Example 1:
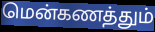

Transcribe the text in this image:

மென்கணத்தும்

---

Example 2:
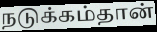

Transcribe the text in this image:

நடுக்கம்தான்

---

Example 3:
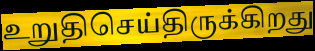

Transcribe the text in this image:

உறுதிசெய்திருக்கிறது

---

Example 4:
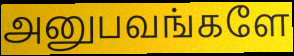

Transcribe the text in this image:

அனுபவங்களே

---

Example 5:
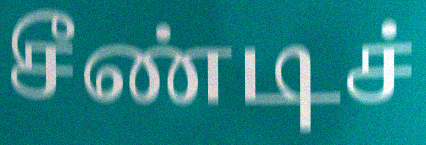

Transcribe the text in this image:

சீண்டிச்